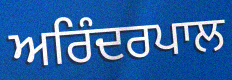
ਅਰਿੰਦਰਪਾਲ